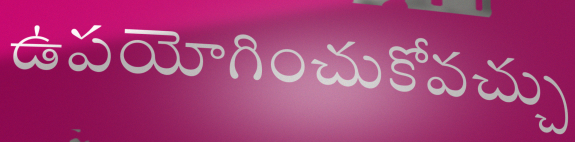
ఉపయోగించుకోవచ్చు